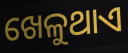
ଖେଳୁଥାଏ